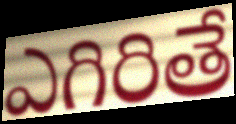
ఎగిరితే